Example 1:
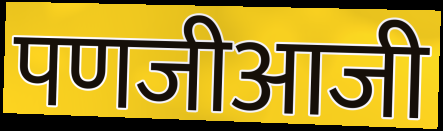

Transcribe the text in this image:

पणजीआजी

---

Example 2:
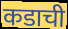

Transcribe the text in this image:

कडाची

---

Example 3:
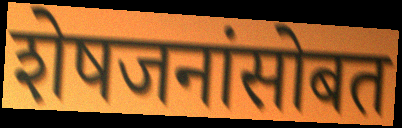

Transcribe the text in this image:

शेषजनांसोबत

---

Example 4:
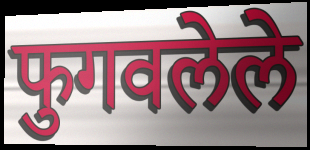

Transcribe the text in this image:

फुगवलेले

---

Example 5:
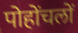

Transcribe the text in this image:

पोहोंचलों